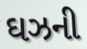
ઘઝની